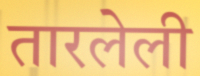
तारलेली